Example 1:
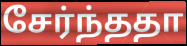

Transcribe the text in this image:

சேர்ந்ததா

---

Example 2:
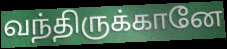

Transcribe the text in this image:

வந்திருக்கானே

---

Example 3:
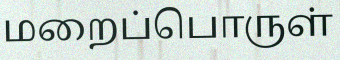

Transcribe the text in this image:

மறைப்பொருள்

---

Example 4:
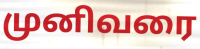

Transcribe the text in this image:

முனிவரை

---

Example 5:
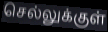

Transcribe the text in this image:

செல்லுக்குள்